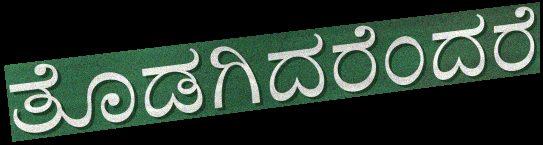
ತೊಡಗಿದರೆಂದರೆ